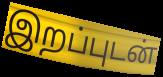
இறப்புடன்